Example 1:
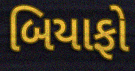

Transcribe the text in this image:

બિયાફો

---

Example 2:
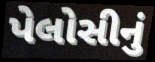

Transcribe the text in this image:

પેલોસીનું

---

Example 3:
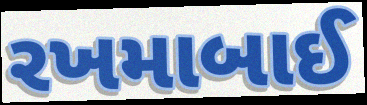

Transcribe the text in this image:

રખમાબાઈ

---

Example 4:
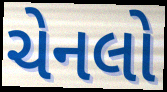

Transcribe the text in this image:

ચેનલો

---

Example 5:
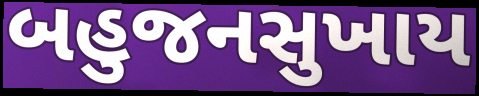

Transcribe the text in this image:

બહુજનસુખાય